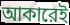
আকারেই